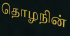
தொழநின்